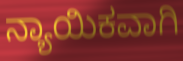
ನ್ಯಾಯಿಕವಾಗಿ